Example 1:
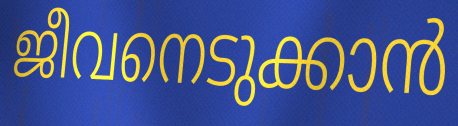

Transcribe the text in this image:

ജീവനെടുക്കാൻ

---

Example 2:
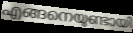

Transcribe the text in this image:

എങ്ങനെയുണ്ടായി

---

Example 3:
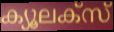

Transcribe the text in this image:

ക്യൂലക്സ്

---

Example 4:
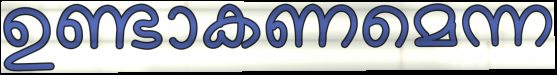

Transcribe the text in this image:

ഉണ്ടാകണമെന്ന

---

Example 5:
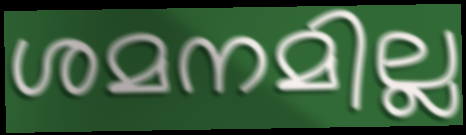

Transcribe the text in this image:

ശമനമില്ല